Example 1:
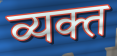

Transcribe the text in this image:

व्यक्त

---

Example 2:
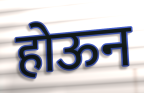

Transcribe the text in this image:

होऊन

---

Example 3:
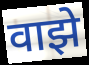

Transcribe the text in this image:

वाझे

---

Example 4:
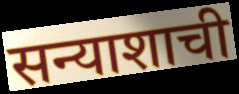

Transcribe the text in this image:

सन्याशाची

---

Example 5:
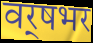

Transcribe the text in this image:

वर्षभर